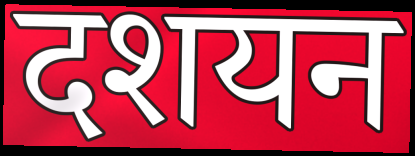
दशयन